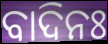
ବାଦିନଃ